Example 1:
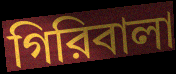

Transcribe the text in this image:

গিরিবালা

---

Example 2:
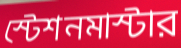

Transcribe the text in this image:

স্টেশনমাস্টার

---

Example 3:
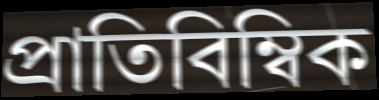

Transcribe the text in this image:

প্রাতিবিম্বিক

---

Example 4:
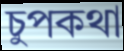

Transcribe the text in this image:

চুপকথা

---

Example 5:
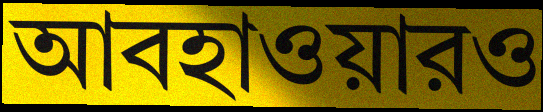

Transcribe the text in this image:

আবহাওয়ারও